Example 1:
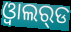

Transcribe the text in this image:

ଓ୍ବାଲର୍‌ଡ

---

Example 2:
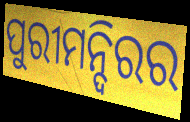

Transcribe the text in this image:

ପୁରୀମନ୍ଦିରର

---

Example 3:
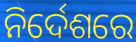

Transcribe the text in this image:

ନିର୍ଦେଶରେ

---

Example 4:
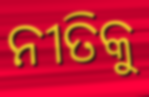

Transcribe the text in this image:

ନୀତିକୁ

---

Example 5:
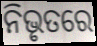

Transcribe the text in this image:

ନିଭୃତରେ